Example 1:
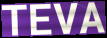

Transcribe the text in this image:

TEVA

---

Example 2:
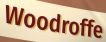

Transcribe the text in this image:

Woodroffe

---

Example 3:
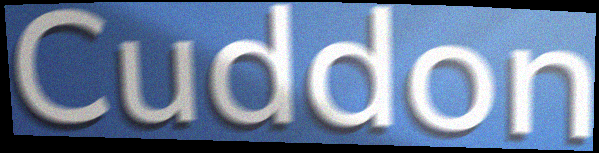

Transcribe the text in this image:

Cuddon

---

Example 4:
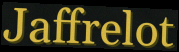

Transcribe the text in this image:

Jaffrelot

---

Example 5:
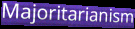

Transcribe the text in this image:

Majoritarianism